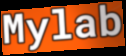
Mylab